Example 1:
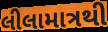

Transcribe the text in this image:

લીલામાત્રથી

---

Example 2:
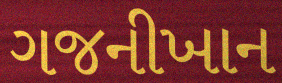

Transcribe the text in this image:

ગજનીખાન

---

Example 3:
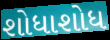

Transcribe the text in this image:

શોધાશોધ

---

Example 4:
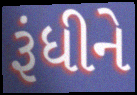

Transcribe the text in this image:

રૂંધીને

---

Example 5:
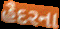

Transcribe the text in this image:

હૈદરના